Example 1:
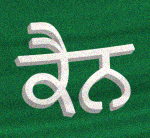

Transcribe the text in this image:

ਕੈਨ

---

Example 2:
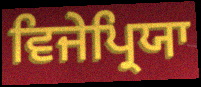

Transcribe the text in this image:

ਵਿਜੇਪ੍ਰਿਯਾ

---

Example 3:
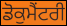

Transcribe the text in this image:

ਡੋਕੁਮੈਂਟਰੀ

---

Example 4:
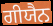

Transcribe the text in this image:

ਗੀਯੈਨ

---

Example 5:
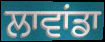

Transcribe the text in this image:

ਲਾਵਾਂਡਾ